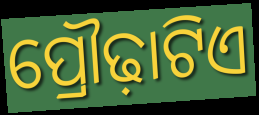
ପ୍ରୌଢ଼ାଟିଏ